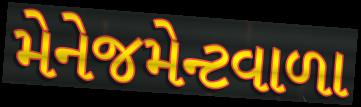
મેનેજમેન્ટવાળા